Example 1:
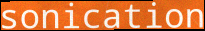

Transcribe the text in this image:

sonication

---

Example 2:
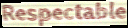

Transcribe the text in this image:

Respectable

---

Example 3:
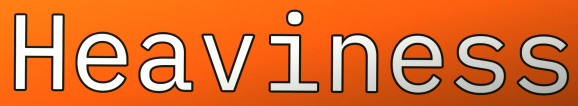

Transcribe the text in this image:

Heaviness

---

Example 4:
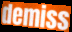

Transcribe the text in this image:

demiss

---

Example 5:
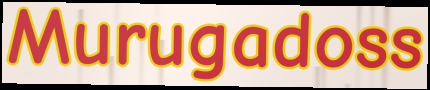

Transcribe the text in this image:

Murugadoss